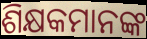
ଶିକ୍ଷକମାନଙ୍କ